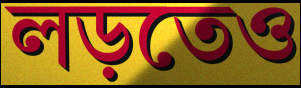
লড়তেও